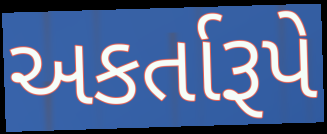
અકર્તારૂપે